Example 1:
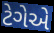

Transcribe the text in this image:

ટેગેએ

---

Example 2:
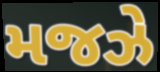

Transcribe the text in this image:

મજઝે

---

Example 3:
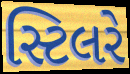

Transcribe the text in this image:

સ્ટિલરે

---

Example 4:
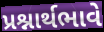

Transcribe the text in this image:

પ્રશ્નાર્થભાવે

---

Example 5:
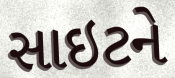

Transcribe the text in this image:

સાઇટને